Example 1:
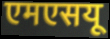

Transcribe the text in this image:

एमएसयू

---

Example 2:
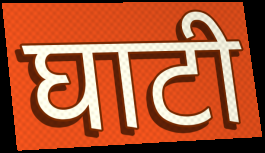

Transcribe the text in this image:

घाटी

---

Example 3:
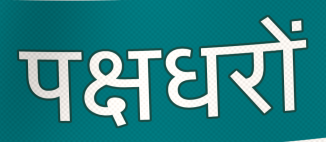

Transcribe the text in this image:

पक्षधरों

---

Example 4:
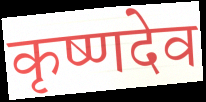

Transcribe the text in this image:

कृष्णदेव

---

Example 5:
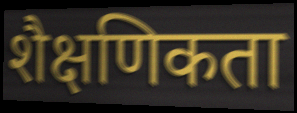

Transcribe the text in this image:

शैक्षणिकता